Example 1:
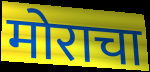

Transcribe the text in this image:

मोराचा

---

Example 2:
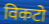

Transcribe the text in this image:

विकटो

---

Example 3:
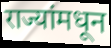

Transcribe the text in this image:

राज्यांमधून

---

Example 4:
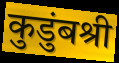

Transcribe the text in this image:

कुडुंबश्री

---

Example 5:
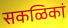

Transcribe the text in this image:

सकळिकां